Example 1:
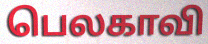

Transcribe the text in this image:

பெலகாவி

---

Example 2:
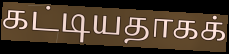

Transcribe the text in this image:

கட்டியதாகக்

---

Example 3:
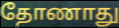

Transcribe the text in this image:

தோணாது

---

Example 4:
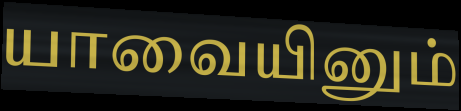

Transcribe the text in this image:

யாவையினும்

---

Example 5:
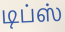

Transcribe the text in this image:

டிப்ஸ்